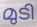
മുടി